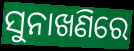
ସୁନାଖଣିରେ